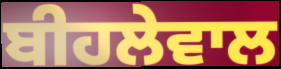
ਬੀਹਲੇਵਾਲ